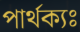
পার্থক্যঃ